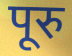
पूरु